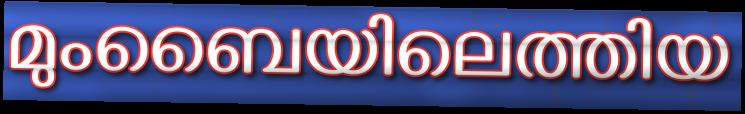
മുംബൈയിലെത്തിയ